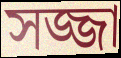
সজ্জা